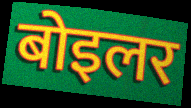
बोइलर